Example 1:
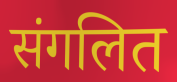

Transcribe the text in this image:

संगलित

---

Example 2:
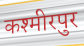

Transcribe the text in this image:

कश्मीरपुर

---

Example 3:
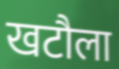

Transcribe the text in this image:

खटौला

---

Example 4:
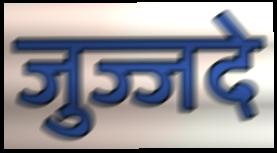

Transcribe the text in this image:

जुज्जदे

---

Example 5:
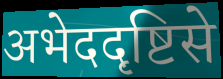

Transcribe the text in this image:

अभेददृष्टिसे